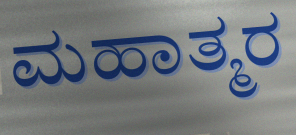
ಮಹಾತ್ಮರ